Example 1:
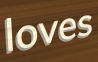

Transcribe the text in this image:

loves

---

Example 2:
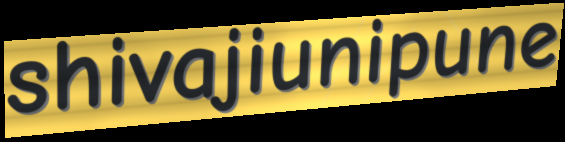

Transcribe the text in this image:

shivajiunipune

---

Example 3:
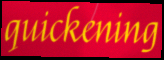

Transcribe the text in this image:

quickening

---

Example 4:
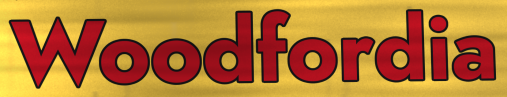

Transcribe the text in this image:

Woodfordia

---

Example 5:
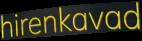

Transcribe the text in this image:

hirenkavad